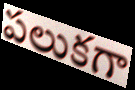
పలుకగా